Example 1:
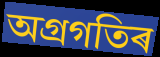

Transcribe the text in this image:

অগ্ৰগতিৰ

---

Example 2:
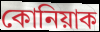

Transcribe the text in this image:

কোনিয়াক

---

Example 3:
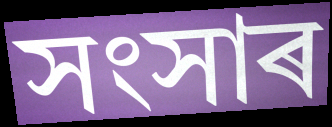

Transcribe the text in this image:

সংসাৰ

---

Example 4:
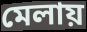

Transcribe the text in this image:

মেলায়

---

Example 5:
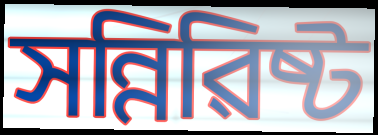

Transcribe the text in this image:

সন্নিৱিষ্ট